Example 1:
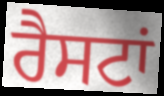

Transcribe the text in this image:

ਰੈਸਟਾਂ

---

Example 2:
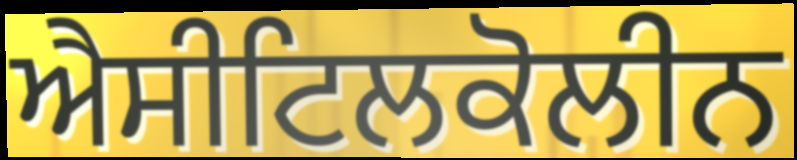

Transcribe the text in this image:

ਐਸੀਟਿਲਕੋਲੀਨ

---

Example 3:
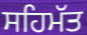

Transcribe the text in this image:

ਸਹਿਮੱਤ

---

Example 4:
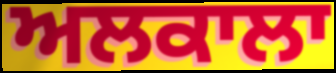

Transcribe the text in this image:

ਅਲਕਾਲਾ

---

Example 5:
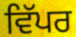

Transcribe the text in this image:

ਵਿੱਪਰ